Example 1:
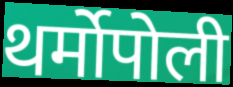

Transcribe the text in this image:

थर्मोपोली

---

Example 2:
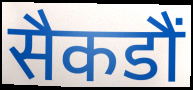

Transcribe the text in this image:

सैकडौं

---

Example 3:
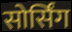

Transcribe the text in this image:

सोर्सिंग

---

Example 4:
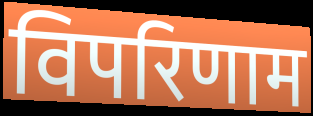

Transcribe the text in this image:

विपरिणाम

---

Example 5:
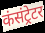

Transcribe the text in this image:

कंसंट्रेटर